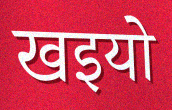
खइयो